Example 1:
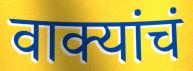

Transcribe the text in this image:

वाक्यांचं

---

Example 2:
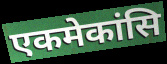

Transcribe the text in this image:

एकमेकांसि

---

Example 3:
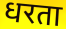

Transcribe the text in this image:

धरता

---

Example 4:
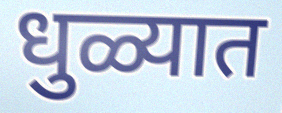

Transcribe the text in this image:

धुळ्यात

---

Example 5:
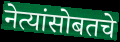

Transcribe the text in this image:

नेत्यांसोबतचे